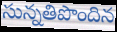
సున్నతిపొందిన